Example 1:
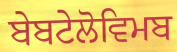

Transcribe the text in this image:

ਬੇਬਟੇਲੋਵਿਮਬ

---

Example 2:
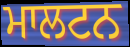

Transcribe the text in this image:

ਮਾਲਟਨ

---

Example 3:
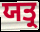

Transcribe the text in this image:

ਯਤ੍ਰ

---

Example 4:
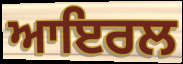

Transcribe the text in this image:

ਆਇਰਲ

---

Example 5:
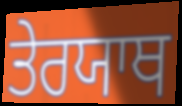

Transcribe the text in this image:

ਤੇਰਯਾਥ